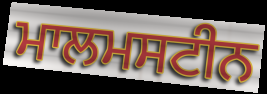
ਮਾਲਮਸਟੀਨ